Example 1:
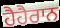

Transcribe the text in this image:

ਹੈਹੈਰਾਨ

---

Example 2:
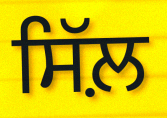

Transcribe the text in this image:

ਸਿੱਲ਼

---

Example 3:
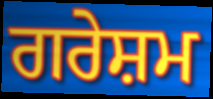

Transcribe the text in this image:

ਗਰੇਸ਼ਮ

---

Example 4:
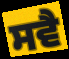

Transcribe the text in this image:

ਸਵੈ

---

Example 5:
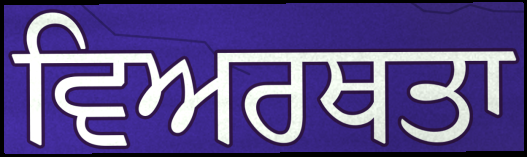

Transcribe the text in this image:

ਵਿਅਰਥਤਾ